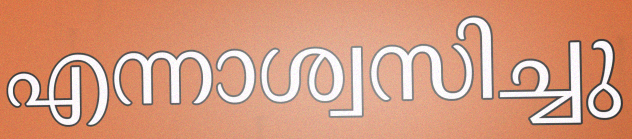
എന്നാശ്വസിച്ചു